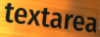
textarea